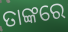
ତାଙ୍କରେ